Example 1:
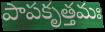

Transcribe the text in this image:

పాపకృత్తమః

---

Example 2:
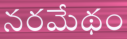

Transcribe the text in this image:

నరమేథం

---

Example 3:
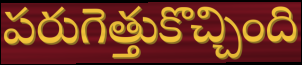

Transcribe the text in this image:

పరుగెత్తుకొచ్చింది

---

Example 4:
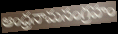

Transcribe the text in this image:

ఆంధ్రనామసంగ్రహం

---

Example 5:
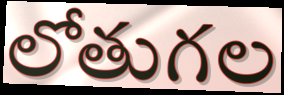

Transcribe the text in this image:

లోతుగల